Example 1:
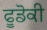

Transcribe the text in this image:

ਫੂਡੋਕੀ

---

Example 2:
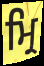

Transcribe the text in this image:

ਮ੍ਰਿ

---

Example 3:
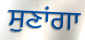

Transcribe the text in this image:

ਸੁਣਾਂਗਾ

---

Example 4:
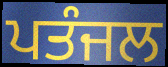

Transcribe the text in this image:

ਪਤੰਜਲ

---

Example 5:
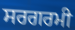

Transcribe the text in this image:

ਸਰਗਰਮੀ